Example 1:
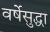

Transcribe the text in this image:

वर्षेसुद्धा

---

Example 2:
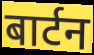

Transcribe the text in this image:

बार्टन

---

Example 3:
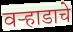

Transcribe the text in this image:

वऱ्हाडाचे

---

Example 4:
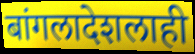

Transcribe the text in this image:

बांगलादेशलाही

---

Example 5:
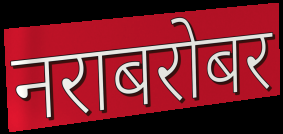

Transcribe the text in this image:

नराबरोबर